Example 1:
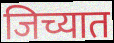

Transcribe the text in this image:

जिच्यात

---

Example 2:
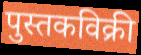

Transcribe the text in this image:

पुस्तकविक्री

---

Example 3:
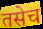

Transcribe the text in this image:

तसेच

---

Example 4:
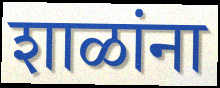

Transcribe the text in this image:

शाळांना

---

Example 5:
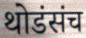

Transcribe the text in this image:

थोडंसंच